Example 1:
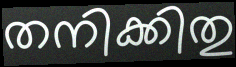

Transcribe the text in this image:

തനിക്കിതു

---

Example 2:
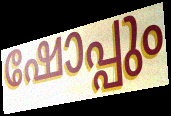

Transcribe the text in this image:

ഷോപ്പും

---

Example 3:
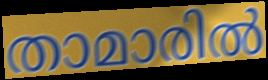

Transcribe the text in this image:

താമാരിൽ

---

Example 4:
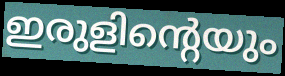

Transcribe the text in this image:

ഇരുളിന്റെയും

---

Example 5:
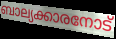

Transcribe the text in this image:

ബാല്യക്കാരനോട്